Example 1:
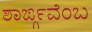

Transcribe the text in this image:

ಶಾರ್ಙ್ಗವೆಂಬ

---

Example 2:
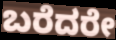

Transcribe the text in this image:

ಬರೆದರೇ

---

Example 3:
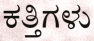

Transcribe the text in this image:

ಕತ್ತಿಗಳು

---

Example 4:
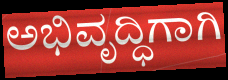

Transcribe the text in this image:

ಅಭಿವೃದ್ಧಿಗಾಗಿ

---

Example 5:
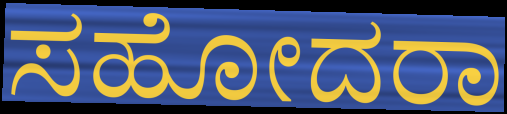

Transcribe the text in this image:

ಸಹೋದರಾ